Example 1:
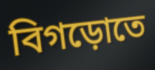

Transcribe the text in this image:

বিগড়োতে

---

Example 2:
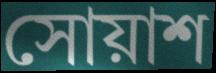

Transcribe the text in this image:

সোয়াশ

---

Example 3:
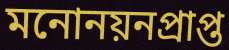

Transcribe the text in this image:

মনোনয়নপ্রাপ্ত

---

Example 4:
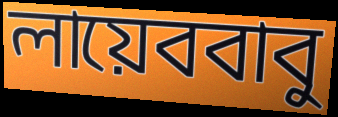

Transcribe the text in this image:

লায়েববাবু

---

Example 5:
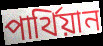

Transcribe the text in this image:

পার্থিয়ান